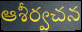
ఆశీర్వచన